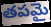
తపమై